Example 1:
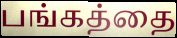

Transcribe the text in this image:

பங்கத்தை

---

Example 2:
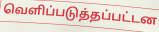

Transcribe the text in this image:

வெளிப்படுத்தப்பட்டன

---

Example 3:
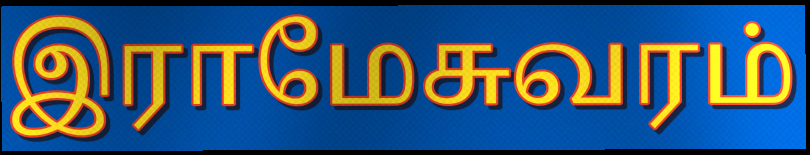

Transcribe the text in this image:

இராமேசுவரம்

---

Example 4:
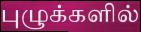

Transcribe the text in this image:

புழுக்களில்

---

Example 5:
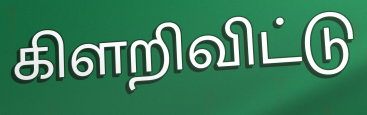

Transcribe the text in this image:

கிளறிவிட்டு